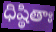
ధిష్ఠితాః